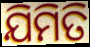
ଯିମିତି